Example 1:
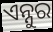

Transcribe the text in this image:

ଏନ୍ନୁର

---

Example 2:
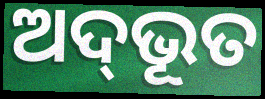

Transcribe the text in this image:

ଅଦ୍‌ଭୂତ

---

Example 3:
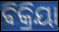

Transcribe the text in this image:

ଵିକ୍ରିୟା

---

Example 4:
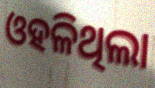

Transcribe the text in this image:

ଓହଳିଥିଲା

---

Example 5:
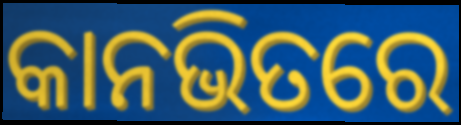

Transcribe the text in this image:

କାନଭିତରେ